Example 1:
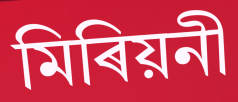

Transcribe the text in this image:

মিৰিয়নী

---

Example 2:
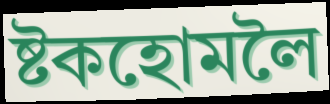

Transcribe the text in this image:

ষ্টকহোমলৈ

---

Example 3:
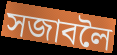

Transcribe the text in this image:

সজাবলৈ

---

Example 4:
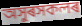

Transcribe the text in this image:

অসুৰসকলৰ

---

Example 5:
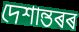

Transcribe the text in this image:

দেশান্তৰৰ